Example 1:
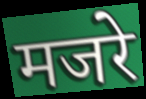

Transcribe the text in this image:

मजरे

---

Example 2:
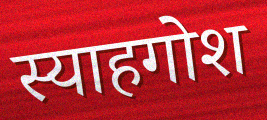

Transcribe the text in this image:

स्याहगोश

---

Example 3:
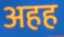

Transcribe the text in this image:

अहह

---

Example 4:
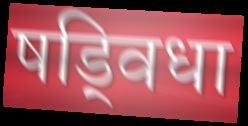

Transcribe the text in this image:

षड्विधा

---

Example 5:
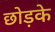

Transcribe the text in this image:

छोड़के